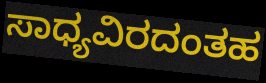
ಸಾಧ್ಯವಿರದಂತಹ